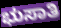
ಭುಸಾತಿ